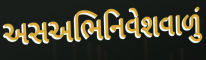
અસઅભિનિવેશવાળું